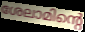
ശേലാമിന്റെ